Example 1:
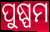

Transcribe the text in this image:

ପୁଷ୍ପମ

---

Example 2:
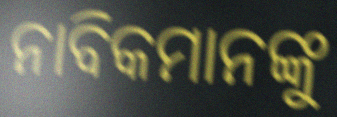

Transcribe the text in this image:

ନାବିକମାନଙ୍କୁ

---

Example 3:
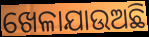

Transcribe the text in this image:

ଖେଳାଯାଉଅଛି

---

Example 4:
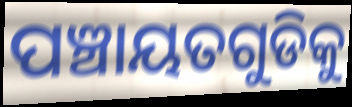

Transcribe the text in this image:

ପଞ୍ଚାୟତଗୁଡିକୁ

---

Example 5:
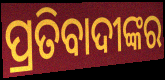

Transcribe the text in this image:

ପ୍ରତିବାଦୀଙ୍କର